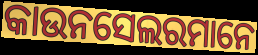
କାଉନସେଲରମାନେ